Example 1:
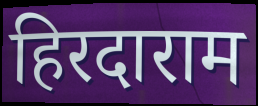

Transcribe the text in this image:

हिरदाराम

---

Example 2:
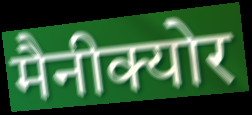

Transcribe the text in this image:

मैनीक्योर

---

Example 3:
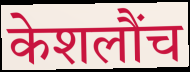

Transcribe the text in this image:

केशलौंच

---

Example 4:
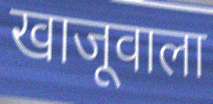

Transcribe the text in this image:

खाजूवाला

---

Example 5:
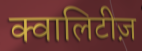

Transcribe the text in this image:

क्वालिटीज़